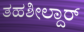
ತಹಶೀಲ್ದಾರ್